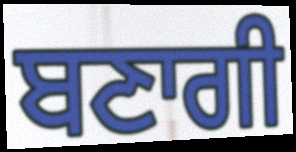
ਬਣਾਗੀ